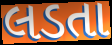
લડતા